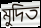
মুদিত